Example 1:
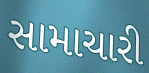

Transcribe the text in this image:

સામાચારી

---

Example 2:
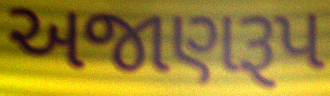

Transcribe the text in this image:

અજાણરૂપ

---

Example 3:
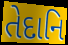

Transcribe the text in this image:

તેદાનિ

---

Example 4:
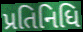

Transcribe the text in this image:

પ્રતિનિધિ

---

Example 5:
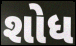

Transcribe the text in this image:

શોધ